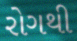
રોગથી